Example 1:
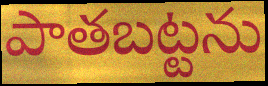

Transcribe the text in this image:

పాతబట్టను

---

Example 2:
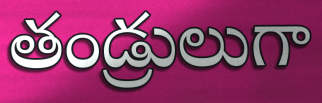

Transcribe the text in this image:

తండ్రులుగా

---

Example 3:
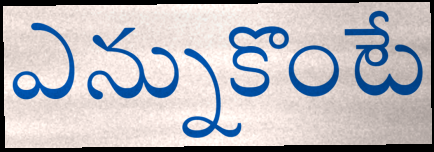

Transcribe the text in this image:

ఎన్నుకొంటే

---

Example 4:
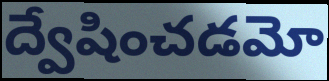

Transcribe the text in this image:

ద్వేషించడమో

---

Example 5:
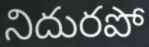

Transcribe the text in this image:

నిదురపో